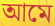
আমে